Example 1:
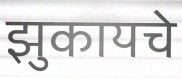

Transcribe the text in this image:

झुकायचे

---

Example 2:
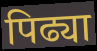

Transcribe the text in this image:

पिढ्या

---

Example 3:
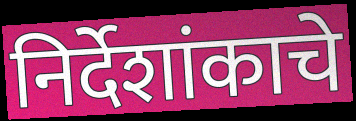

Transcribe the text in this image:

निर्देशांकाचे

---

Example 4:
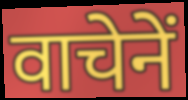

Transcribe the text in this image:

वाचेनें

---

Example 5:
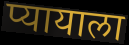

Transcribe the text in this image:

प्यायाला